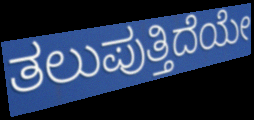
ತಲುಪುತ್ತಿದೆಯೇ